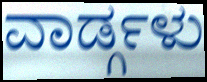
ವಾರ್ಡ್ಗಳು